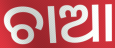
ଚାଆ